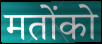
मतोंको